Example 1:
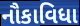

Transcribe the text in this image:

નૌકાવિધા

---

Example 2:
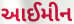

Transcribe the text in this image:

આઈમીન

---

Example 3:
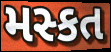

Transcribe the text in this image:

મસ્કત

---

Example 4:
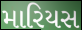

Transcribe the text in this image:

મારિયસ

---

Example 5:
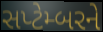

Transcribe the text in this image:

સપ્ટેમ્બરને